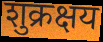
शुक्रक्षय